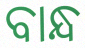
ବାନ୍ଧ